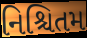
નિશ્ચિતમ